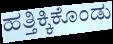
ಹತ್ತಿಕ್ಕಿಕೊಂಡು